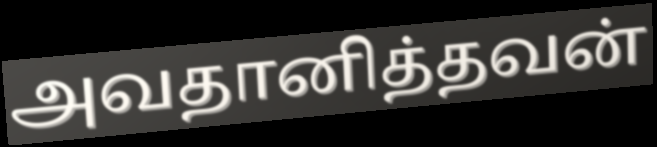
அவதானித்தவன்